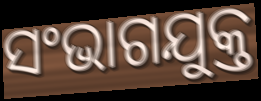
ସଂଭାଗଯୁକ୍ତ